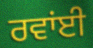
ਰਵਾਂਈ